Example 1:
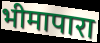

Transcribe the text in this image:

भीमापारा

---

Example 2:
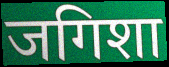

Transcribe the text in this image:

जगिशा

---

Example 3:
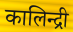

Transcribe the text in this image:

कालिन्द्री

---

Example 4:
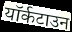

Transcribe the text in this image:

यॉर्कटाउन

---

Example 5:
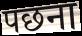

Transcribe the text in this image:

पछना